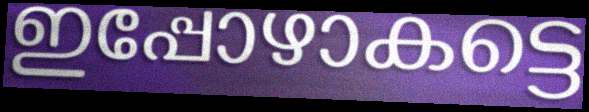
ഇപ്പോഴാകട്ടെ